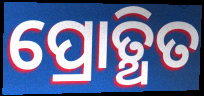
ପ୍ରୋତ୍ଥିତ